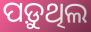
ପଡ଼ୁଥିଲ